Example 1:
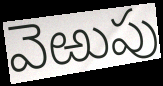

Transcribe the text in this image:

వెఱుపు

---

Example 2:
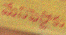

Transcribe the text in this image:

మేనిఫెస్టోకు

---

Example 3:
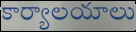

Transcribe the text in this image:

కార్యాలయాలు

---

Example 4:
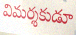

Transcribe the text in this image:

విమర్శకుడూ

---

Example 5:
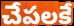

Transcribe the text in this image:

చేపలకే